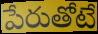
పేరుతోటే